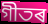
গীতৰ